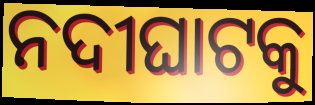
ନଦୀଘାଟକୁ